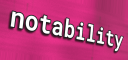
notability